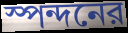
স্পন্দনের